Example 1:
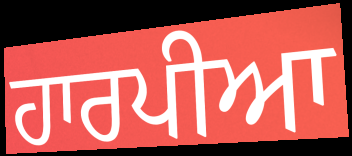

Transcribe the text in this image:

ਹਾਰਪੀਆ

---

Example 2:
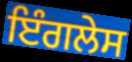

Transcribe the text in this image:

ਇੰਗਲੇਸ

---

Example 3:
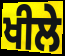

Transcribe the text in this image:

ਖੀਲੇ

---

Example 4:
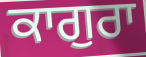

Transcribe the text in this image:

ਕਾਗੁਰਾ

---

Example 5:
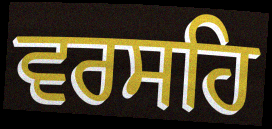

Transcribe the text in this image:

ਵਰਸਹਿ